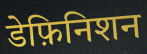
डेफ़िनिशन